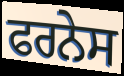
ਫਰਨੇਸ